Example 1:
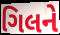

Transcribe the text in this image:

ગિલને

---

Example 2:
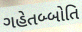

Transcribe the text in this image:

ગહેતબ્બોતિ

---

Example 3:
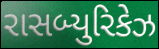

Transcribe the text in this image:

રાસબ્યુરિકેઝ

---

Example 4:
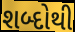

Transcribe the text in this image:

શબ્દોથી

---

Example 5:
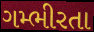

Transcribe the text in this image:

ગમ્ભીરતા